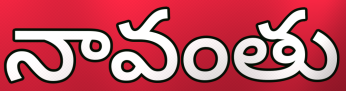
నావంతు